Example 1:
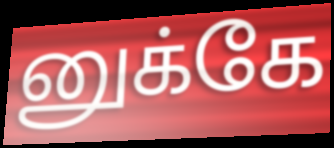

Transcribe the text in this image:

னுக்கே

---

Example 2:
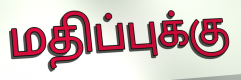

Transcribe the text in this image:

மதிப்புக்கு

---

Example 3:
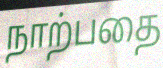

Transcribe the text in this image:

நாற்பதை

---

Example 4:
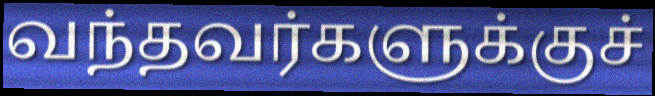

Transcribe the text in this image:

வந்தவர்களுக்குச்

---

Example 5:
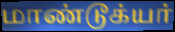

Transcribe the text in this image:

மாண்டூக்யர்